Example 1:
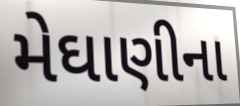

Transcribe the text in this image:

મેઘાણીના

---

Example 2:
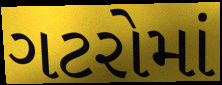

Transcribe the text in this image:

ગટરોમાં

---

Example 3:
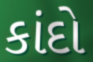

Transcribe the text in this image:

કાંદો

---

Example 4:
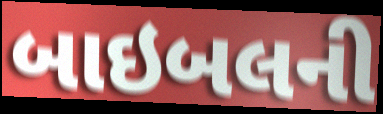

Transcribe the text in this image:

બાઇબલની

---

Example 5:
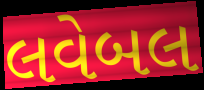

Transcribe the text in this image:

લવેબલ